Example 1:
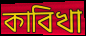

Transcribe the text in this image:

কাবিখা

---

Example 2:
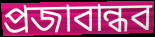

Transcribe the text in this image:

প্রজাবান্ধব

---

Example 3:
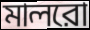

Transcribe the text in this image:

মালরো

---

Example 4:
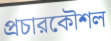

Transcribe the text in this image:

প্রচারকৌশল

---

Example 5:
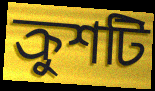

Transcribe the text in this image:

ক্রুশটি